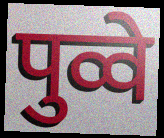
पुव्वे